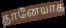
தானேயாக